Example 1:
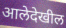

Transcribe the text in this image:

आलेदेखील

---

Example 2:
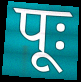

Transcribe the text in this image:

पूः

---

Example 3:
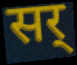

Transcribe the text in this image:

सर्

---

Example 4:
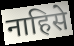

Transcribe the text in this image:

नाहिसे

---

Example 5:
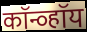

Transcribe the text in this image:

कॉन्व्हॉय